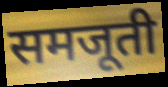
समजूती